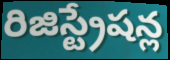
రిజిస్ట్రేషన్ల